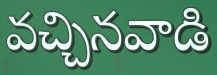
వచ్చినవాడి